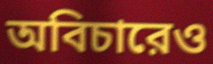
অবিচারেও